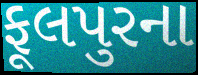
ફૂલપુરના